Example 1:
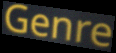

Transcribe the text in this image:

Genre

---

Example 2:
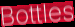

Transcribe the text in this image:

Bottles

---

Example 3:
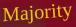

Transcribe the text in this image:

Majority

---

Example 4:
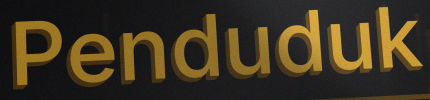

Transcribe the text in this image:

Penduduk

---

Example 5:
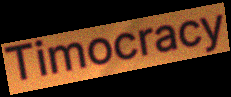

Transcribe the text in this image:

Timocracy